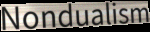
Nondualism